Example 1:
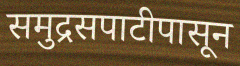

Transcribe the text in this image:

समुद्रसपाटीपासून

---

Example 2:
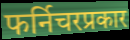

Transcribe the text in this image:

फर्निचरप्रकार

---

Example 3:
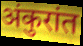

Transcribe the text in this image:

अंकुरांत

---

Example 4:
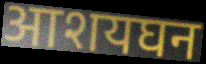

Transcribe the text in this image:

आशयघन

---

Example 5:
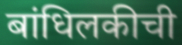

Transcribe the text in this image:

बांधिलकीची